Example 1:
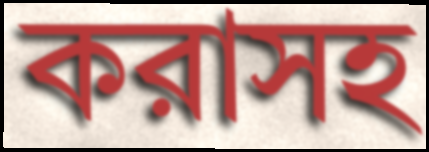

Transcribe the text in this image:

করাসহ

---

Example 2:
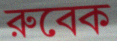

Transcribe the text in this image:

রুবেক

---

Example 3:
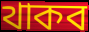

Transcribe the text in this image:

থাকব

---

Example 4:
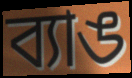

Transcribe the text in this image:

ব্যাঙ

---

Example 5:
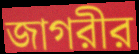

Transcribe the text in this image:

জাগরীর